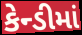
કેન્ડીમાં